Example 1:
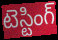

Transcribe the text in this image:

టెస్టింగ్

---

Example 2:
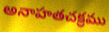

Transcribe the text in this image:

అనాహతచక్రము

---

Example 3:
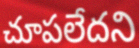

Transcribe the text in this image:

చూపలేదని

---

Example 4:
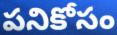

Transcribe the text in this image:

పనికోసం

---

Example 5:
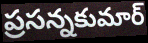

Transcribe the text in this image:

ప్రసన్నకుమార్